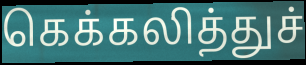
கெக்கலித்துச்